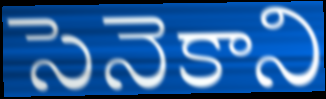
సెనెకాని